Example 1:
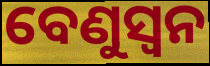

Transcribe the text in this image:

ବେଣୁସ୍ଵନ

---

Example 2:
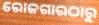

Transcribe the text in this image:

ରୋଜଗାରଠାରୁ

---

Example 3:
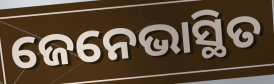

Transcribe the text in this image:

ଜେନେଭାସ୍ଥିତ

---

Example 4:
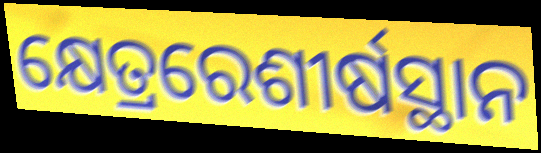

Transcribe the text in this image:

କ୍ଷେତ୍ରରେଶୀର୍ଷସ୍ଥାନ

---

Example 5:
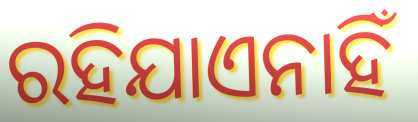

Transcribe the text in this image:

ରହିଯାଏନାହିଁ